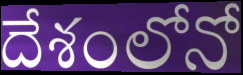
దేశంలోనో